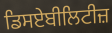
ਡਿਸਏਬੀਲਿਟੀਜ਼